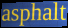
asphalt